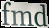
fmd